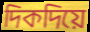
দিকদিয়ে